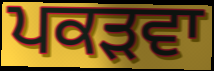
ਪਕੜਵਾ